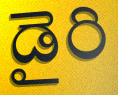
డైరి